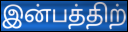
இன்பத்திற்